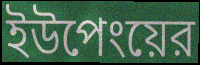
ইউপেংয়ের